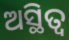
ଅସ୍ଥିତ୍ୱ